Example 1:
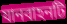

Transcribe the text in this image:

যানবাহনটি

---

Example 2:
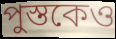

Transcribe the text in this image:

পুস্তকেও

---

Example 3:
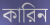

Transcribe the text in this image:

কারিন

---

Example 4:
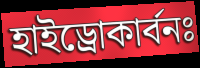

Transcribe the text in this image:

হাইড্রোকার্বনঃ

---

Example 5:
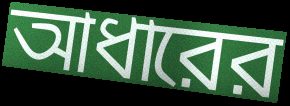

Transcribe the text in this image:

আধারের